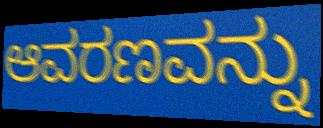
ಆವರಣವನ್ನು